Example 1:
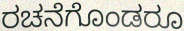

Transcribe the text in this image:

ರಚನೆಗೊಂಡರೂ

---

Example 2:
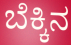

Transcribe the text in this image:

ಬೆಕ್ಕಿನ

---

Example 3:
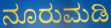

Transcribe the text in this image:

ನೂರುಮಡಿ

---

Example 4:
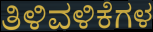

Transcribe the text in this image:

ತಿಳಿವಳಿಕೆಗಳ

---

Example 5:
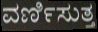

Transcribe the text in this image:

ವರ್ಣಿಸುತ್ತ